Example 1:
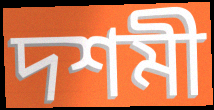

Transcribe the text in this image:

দশমী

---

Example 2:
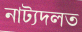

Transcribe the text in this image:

নাট্যদলত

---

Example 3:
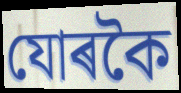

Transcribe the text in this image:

যোৰকৈ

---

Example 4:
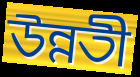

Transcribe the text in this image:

উন্নতী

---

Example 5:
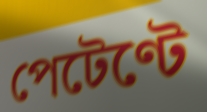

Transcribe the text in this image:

পেটেণ্টে